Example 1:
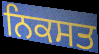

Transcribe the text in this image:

ਨਿਕਸਤ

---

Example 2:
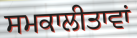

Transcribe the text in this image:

ਸਮਕਾਲੀਤਾਵਾਂ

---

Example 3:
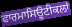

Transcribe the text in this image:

ਫਾਰਮਾਸਿਊਟੀਕਲਾਂ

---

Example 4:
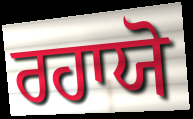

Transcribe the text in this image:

ਰਹਾਯੋ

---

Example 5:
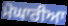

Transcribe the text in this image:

ਮੋਘਾਰੀਆ